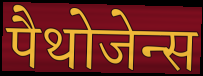
पैथोजेन्स